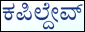
ಕಪಿಲ್ದೇವ್